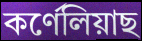
কৰ্ণেলিয়াছ